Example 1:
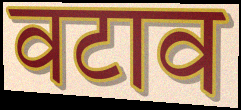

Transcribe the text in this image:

वटाव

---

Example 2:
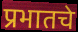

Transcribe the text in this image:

प्रभातचे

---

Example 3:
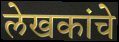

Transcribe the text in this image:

लेखकांचे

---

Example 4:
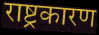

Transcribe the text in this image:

राष्ट्रकारण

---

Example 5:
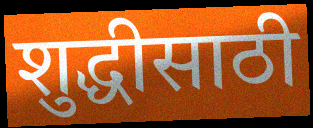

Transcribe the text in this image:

शुद्धीसाठी